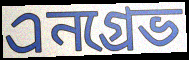
এনগ্রেভ